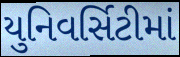
યુનિવર્સિટીમાં